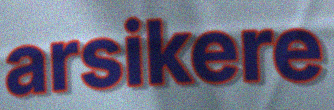
arsikere